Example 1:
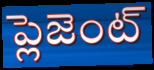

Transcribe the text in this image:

ప్లెజెంట్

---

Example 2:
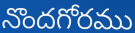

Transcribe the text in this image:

నొందగోరము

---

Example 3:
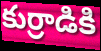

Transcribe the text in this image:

కుర్రాడికి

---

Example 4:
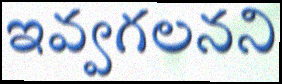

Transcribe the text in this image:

ఇవ్వగలనని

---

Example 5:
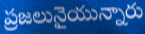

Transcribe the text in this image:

ప్రజలునైయున్నారు